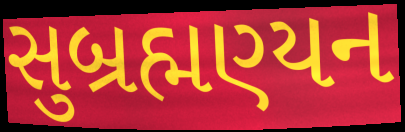
સુબ્રહ્મણ્યન